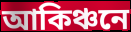
আকিঞ্চনে